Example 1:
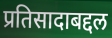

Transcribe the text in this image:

प्रतिसादाबद्दल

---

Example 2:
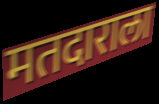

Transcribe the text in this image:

मतदाराला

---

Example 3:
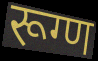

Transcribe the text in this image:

रूग्ण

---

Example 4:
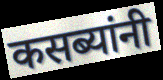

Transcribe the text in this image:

कसब्यांनी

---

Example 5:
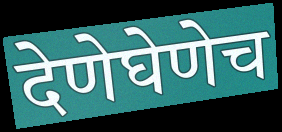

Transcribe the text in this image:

देणेघेणेच